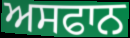
ਅਸਫਾਨ